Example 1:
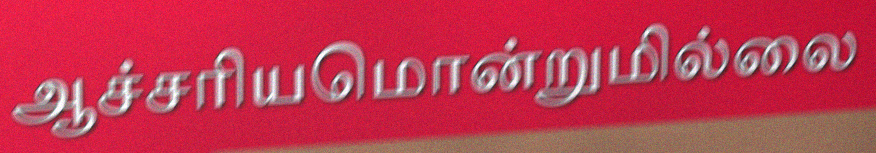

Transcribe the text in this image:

ஆச்சரியமொன்றுமில்லை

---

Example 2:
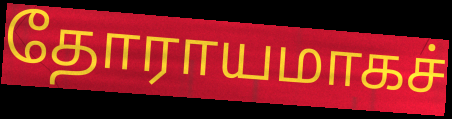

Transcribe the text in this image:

தோராயமாகச்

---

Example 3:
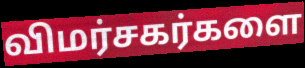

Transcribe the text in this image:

விமர்சகர்களை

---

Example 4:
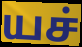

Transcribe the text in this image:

யச்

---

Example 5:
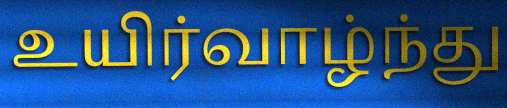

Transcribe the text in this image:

உயிர்வாழ்ந்து